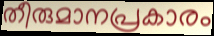
തീരുമാനപ്രകാരം